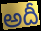
అదీ